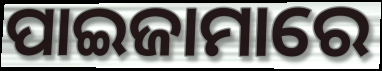
ପାଇଜାମାରେ